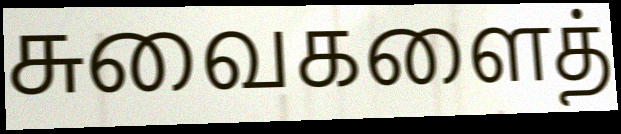
சுவைகளைத்